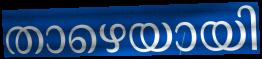
താഴെയായി